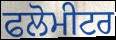
ਫਲੋਮੀਟਰ